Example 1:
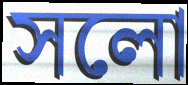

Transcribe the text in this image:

সলো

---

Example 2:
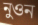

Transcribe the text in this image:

নুওন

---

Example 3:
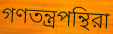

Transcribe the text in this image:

গণতন্ত্রপন্থিরা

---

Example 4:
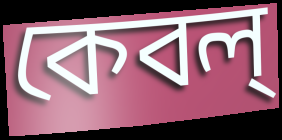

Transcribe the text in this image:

কেবল্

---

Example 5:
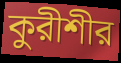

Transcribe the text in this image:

কুরীশীর